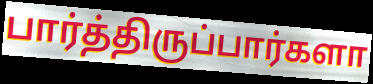
பார்த்திருப்பார்களா